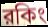
রকিং